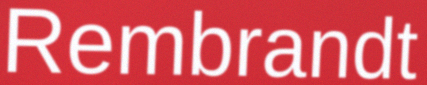
Rembrandt